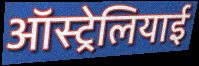
ऑस्ट्रेलियाई